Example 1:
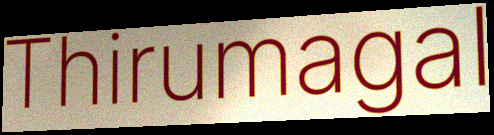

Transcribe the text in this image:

Thirumagal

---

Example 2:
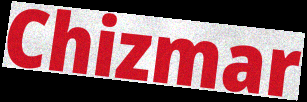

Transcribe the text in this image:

Chizmar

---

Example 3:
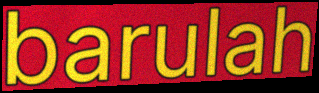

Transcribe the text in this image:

barulah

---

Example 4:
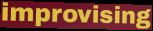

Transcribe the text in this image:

improvising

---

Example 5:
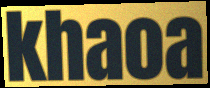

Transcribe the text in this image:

khaoa